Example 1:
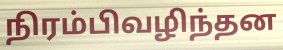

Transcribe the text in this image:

நிரம்பிவழிந்தன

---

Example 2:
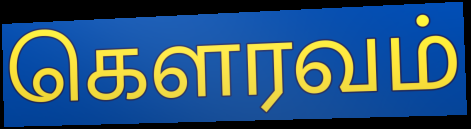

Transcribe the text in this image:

கெளரவம்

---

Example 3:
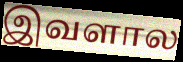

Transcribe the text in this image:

இவளால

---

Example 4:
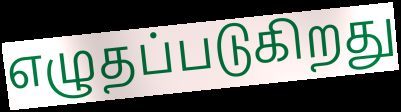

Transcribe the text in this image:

எழுதப்படுகிறது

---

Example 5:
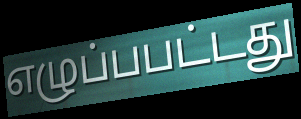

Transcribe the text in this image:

எழுப்பபட்டது